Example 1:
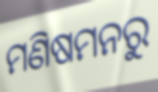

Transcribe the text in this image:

ମଣିଷମନରୁ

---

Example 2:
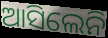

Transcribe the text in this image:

ଆସିଲେନି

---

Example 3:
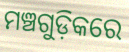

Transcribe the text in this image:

ମଞ୍ଚଗୁଡ଼ିକରେ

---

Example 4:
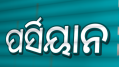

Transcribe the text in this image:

ପର୍ସିୟାନ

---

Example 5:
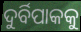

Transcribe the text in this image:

ଦୁର୍ବିପାକକୁ